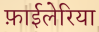
फ़ाईलेरिया